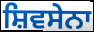
ਸ਼ਿਵਸੇਨਾ